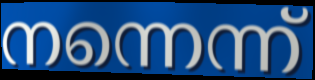
നന്നെന്ന്